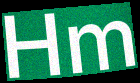
Hm